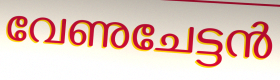
വേണുചേട്ടൻ